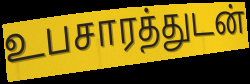
உபசாரத்துடன்